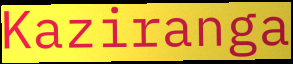
Kaziranga